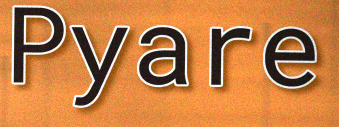
Pyare